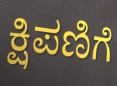
ಕ್ಷಿಪಣಿಗೆ